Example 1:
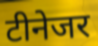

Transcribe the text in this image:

टीनेजर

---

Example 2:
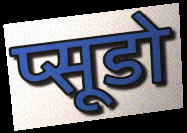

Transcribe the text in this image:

प्सूडो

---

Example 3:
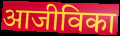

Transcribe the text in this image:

आजीविका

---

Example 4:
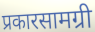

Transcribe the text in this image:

प्रकारसामग्री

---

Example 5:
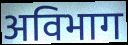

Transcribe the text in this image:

अविभाग